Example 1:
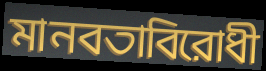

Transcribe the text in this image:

মানবতাবিরোধী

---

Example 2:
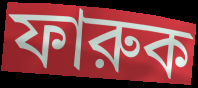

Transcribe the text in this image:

ফারুক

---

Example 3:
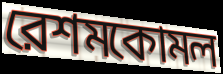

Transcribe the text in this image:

রেশমকোমল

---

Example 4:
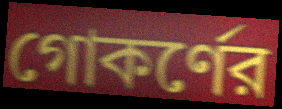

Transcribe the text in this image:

গোকর্ণের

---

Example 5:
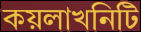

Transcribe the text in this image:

কয়লাখনিটি